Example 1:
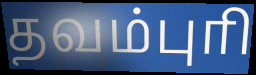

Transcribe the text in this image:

தவம்புரி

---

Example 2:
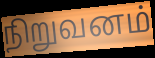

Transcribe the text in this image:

நிறுவனம்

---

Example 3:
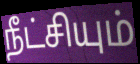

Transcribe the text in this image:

நீட்சியும்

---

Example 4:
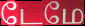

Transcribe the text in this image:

டேமே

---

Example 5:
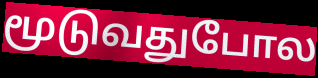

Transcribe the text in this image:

மூடுவதுபோல